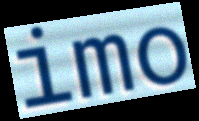
imo